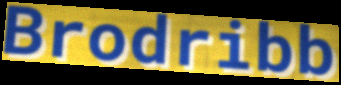
Brodribb